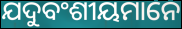
ଯଦୁବଂଶୀୟମାନେ